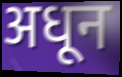
अधून